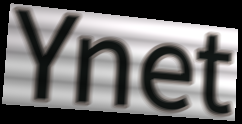
Ynet